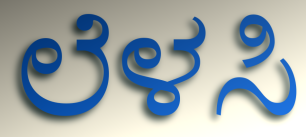
ಲೆಳಸಿ